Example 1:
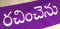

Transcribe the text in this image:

రచించెను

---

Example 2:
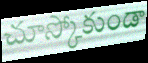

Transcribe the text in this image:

చూస్కోకుండా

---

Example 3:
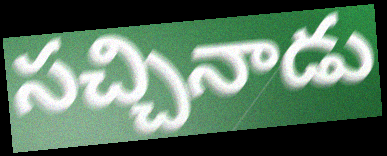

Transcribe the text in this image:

సచ్చినాడు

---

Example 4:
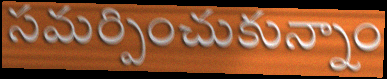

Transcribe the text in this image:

సమర్పించుకున్నాం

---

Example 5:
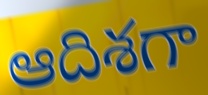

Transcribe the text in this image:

ఆదిశగా